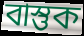
বাস্তুক